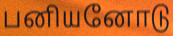
பனியனோடு